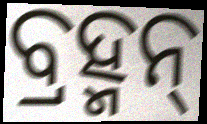
ବ୍ରହ୍ମନ୍